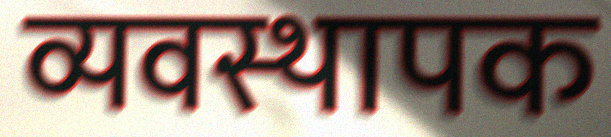
व्यवस्थापक